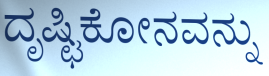
ದೃಷ್ಟಿಕೋನವನ್ನು